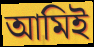
আমিই